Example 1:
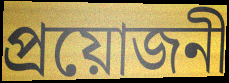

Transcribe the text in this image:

প্ৰয়োজনী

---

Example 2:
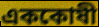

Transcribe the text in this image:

এককোষী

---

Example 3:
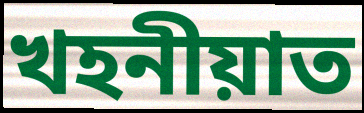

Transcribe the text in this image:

খহনীয়াত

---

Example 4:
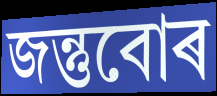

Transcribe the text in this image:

জন্তুবোৰ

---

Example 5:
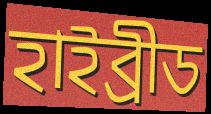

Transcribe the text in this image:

হাইব্ৰীড